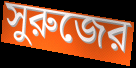
সুরুজের